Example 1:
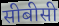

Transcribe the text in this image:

सीबीसी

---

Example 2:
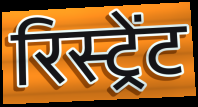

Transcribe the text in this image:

रिस्ट्रेंट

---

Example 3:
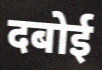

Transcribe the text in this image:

दबोई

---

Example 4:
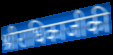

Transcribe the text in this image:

श्रीराधिकाजीकी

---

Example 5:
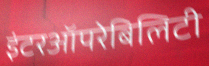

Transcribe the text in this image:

इंटरऑपरेबिलिटी